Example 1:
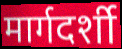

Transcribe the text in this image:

मार्गदर्शी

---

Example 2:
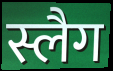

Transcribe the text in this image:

स्लैग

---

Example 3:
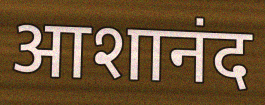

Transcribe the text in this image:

आशानंद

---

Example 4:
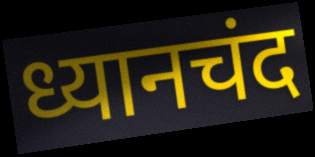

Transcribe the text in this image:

ध्यानचंद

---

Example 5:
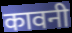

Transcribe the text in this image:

कावनी